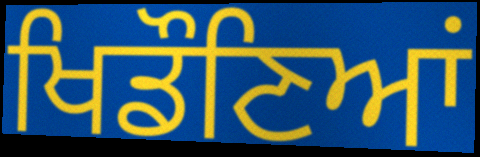
ਖਿਡੌਣਿਆਂ